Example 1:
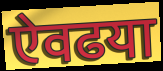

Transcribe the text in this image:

ऐवढया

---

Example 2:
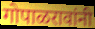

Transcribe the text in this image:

गोपाळरावांनी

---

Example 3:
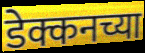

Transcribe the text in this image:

डेक्कनच्या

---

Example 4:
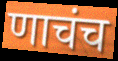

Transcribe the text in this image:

णाचंच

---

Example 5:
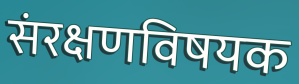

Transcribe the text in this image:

संरक्षणविषयक